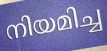
നിയമിച്ച